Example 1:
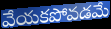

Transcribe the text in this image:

వేయకపోవడమే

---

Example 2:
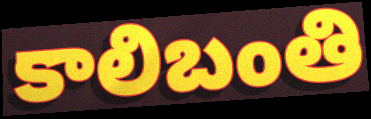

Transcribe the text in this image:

కాలిబంతి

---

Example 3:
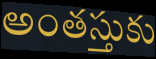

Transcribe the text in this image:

అంతస్తుకు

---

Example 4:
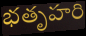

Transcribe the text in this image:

భతృహరి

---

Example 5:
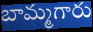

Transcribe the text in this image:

బామ్మగారు